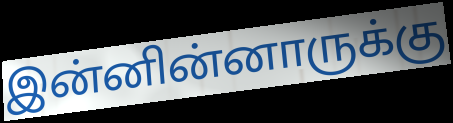
இன்னின்னாருக்கு